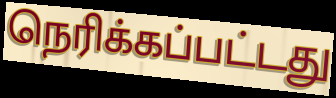
நெரிக்கப்பட்டது